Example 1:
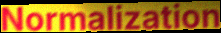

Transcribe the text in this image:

Normalization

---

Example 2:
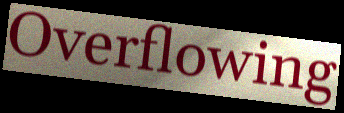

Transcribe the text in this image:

Overflowing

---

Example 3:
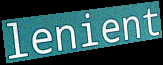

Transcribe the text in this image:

lenient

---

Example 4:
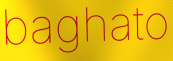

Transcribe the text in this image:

baghato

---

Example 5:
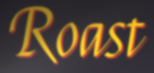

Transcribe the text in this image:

Roast